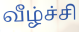
வீழ்ச்சி